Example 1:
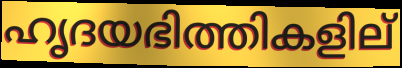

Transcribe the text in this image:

ഹൃദയഭിത്തികളില്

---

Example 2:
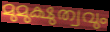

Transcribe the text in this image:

മുമുക്ഷുത്വവും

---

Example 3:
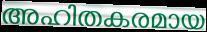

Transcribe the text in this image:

അഹിതകരമായ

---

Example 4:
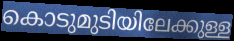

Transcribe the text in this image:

കൊടുമുടിയിലേക്കുള്ള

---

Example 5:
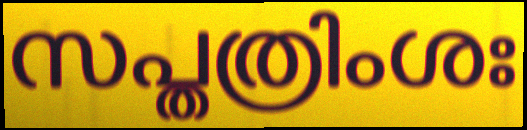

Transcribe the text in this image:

സപ്തത്രിംശഃ